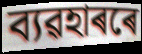
ব্যৱহাৰৰে